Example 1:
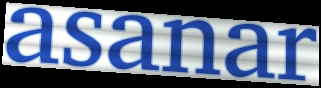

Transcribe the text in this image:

asanar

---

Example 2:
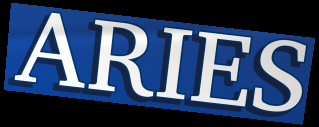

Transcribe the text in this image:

ARIES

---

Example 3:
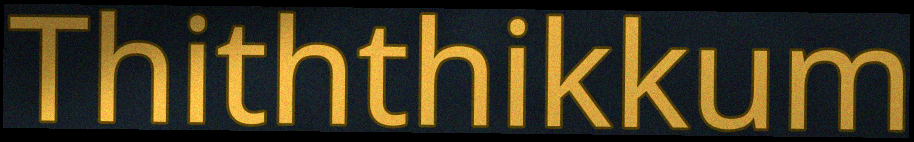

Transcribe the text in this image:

Thiththikkum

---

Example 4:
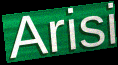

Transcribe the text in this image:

Arisi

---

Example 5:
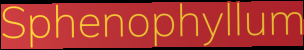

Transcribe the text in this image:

Sphenophyllum